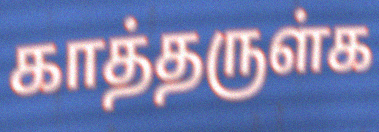
காத்தருள்க